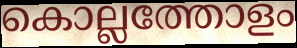
കൊല്ലത്തോളം